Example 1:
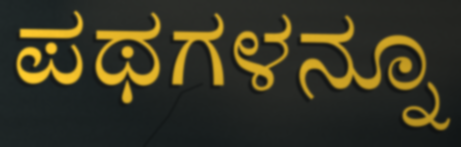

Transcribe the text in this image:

ಪಥಗಳನ್ನೂ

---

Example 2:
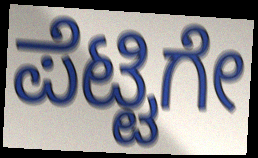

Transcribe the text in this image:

ಪೆಟ್ಟಿಗೇ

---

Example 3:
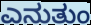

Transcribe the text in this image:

ಎನುತುಂ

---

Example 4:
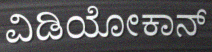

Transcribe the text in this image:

ವಿಡಿಯೋಕಾನ್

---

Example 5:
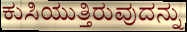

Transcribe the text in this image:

ಕುಸಿಯುತ್ತಿರುವುದನ್ನು